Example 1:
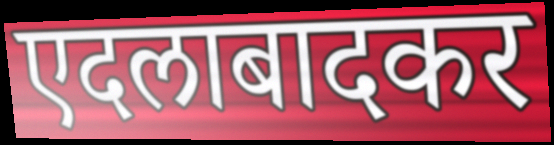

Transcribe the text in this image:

एदलाबादकर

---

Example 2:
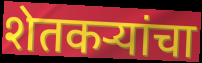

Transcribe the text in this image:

शेतकऱ्यांचा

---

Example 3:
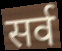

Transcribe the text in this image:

सर्व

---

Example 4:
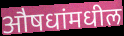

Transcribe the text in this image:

औषधांमधील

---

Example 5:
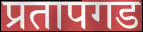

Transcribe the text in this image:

प्रतापगड